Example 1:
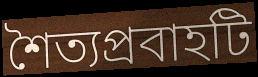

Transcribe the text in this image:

শৈত্যপ্রবাহটি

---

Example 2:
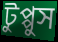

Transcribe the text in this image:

টুপ্পুস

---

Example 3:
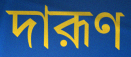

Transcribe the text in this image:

দারূণ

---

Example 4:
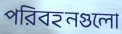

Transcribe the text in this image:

পরিবহনগুলো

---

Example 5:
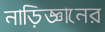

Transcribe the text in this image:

নাড়িজ্ঞানের